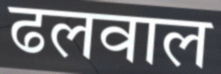
ढलवाल